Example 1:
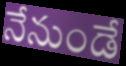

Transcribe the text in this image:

నేనుండే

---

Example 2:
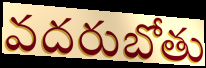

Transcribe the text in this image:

వదరుబోతు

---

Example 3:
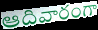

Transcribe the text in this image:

ఆదివారంగా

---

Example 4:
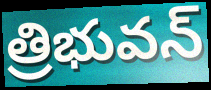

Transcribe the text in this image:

త్రిభువన్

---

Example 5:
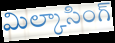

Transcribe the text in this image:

మిల్కాసింగ్